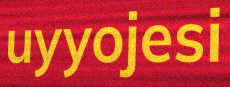
uyyojesi